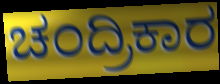
ಚಂದ್ರಿಕಾರ